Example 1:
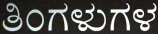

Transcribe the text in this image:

ತಿಂಗಳುಗಳ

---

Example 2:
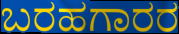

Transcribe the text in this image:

ಬರಹಗಾರರ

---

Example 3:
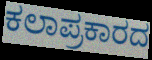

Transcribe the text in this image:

ಕಲಾಪ್ರಕಾರದ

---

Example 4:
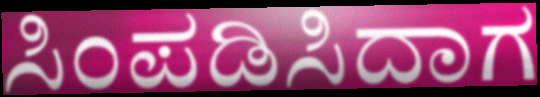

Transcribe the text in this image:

ಸಿಂಪಡಿಸಿದಾಗ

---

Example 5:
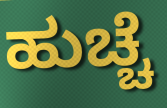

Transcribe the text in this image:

ಹುಚ್ಚೆ